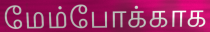
மேம்போக்காக